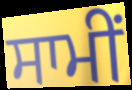
ਸਾਮੀਂ